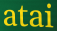
atai